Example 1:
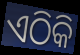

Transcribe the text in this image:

ଏଠିକି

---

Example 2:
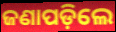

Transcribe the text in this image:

ଜଣାପଡ଼ିଲେ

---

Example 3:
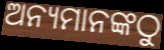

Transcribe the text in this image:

ଅନ୍ୟମାନଙ୍କଠୁ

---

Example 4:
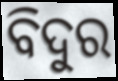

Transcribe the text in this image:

ବିଦୁର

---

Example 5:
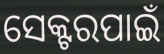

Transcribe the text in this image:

ସେକ୍ଟରପାଇଁ